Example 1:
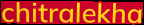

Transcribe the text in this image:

chitralekha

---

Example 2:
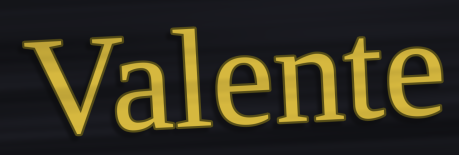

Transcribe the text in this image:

Valente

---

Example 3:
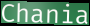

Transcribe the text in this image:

Chania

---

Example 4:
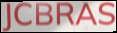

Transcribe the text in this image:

JCBRAS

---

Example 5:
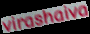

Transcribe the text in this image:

virashaiva